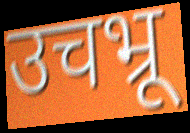
उचभ्रू